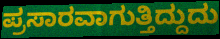
ಪ್ರಸಾರವಾಗುತ್ತಿದ್ದುದು